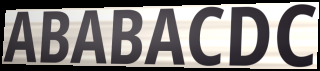
ABABACDC